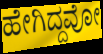
ಹೇಗಿದ್ದವೋ